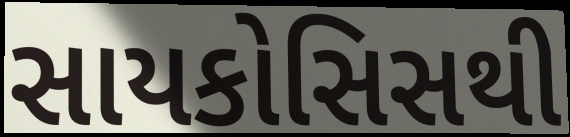
સાયકોસિસથી